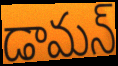
డామన్